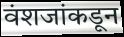
वंशजांकडून